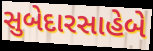
સુબેદારસાહેબે